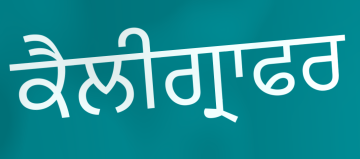
ਕੈਲੀਗ੍ਰਾਫਰ